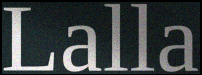
Lalla